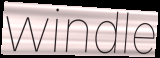
windle